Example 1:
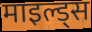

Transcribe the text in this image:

माइल्ड्स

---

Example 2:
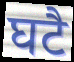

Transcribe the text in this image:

घटै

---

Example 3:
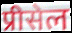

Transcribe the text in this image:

प्रीसेल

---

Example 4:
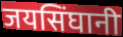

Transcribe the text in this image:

जयसिंघानी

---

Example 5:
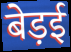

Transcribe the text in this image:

बेड़ई